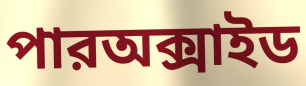
পারঅক্সাইড